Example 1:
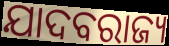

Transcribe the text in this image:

ଯାଦବରାଜ୍ୟ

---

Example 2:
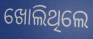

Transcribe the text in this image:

ଖୋଲିଥିଲେ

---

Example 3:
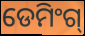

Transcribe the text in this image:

ଡେମିଂଗ୍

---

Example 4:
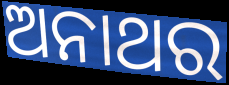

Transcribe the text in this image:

ଅନାଥର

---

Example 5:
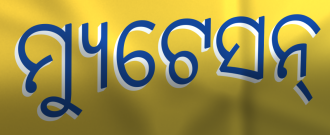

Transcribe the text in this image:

ମ୍ୟୁଟେସନ୍